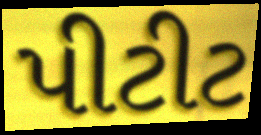
પીટીટ